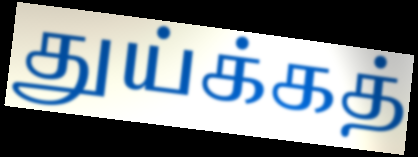
துய்க்கத்